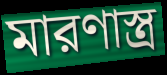
মারণাস্ত্র